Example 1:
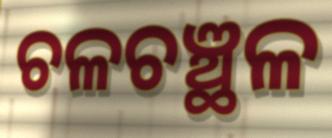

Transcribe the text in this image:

ଚଳଚଞ୍ଛଳ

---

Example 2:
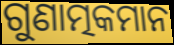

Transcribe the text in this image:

ଗୁଣାତ୍ମକମାନ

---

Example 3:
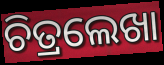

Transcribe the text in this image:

ଚିତ୍ରଲେଖା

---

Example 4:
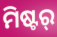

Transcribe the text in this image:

ମିଷ୍ଟର୍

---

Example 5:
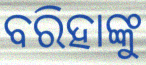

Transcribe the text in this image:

ବରିହାଙ୍କୁ